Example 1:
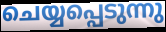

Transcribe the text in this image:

ചെയ്യപ്പെടുന്നു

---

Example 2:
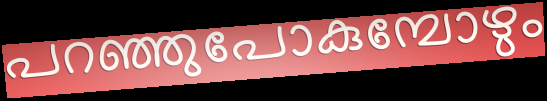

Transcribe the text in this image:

പറഞ്ഞുപോകുമ്പോഴും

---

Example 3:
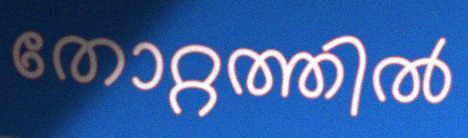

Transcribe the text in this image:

തോറ്റത്തിൽ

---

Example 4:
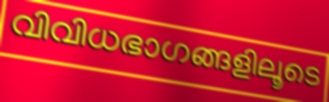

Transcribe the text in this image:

വിവിധഭാഗങ്ങളിലൂടെ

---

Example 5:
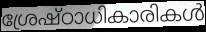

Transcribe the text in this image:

ശ്രേഷ്ഠാധികാരികൾ